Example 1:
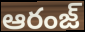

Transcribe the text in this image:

ఆరంజ్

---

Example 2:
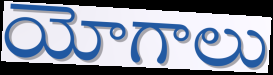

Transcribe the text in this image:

యోగాలు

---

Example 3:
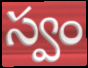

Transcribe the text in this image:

స్వం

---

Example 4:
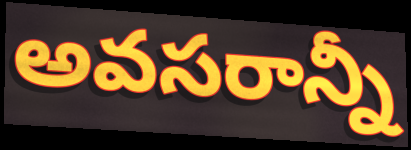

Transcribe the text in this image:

అవసరాన్నీ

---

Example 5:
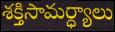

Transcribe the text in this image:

శక్తిసామర్ధ్యాలు